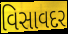
વિસાવદર